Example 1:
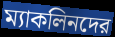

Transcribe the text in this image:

ম্যাকলিনদের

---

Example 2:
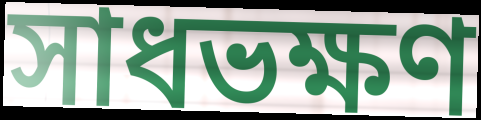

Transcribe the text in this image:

সাধভক্ষণ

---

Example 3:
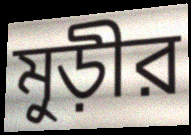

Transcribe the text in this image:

মুড়ীর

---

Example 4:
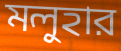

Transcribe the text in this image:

মলুহার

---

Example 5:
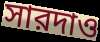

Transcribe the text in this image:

সারদাও